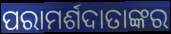
ପରାମର୍ଶଦାତାଙ୍କର